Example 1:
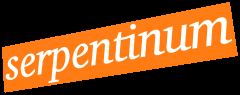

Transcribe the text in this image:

serpentinum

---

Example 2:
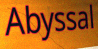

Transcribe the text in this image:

Abyssal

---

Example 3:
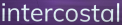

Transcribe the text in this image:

intercostal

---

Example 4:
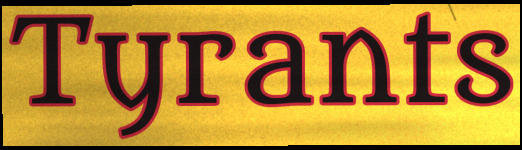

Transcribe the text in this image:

Tyrants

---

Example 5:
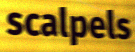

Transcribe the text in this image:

scalpels